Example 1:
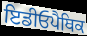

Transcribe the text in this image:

ਇਡੀਓਪੈਥਿਕ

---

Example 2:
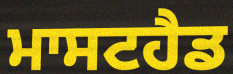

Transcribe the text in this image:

ਮਾਸਟਹੈਡ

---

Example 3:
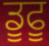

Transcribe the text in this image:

ਡੂਫੂ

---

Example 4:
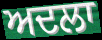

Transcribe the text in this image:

ਅਦਲਾ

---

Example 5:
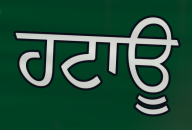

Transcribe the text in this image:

ਹਟਾਊ